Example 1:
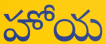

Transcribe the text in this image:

హోయ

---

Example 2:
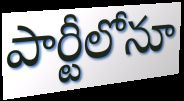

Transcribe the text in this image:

పార్టీలోనూ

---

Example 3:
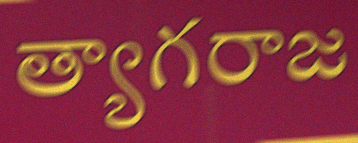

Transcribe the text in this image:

త్యాగరాజ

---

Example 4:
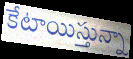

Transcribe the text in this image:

కేటాయిస్తున్నా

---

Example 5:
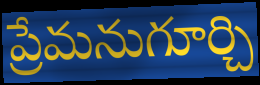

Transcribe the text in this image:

ప్రేమనుగూర్చి